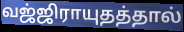
வஜ்ஜிராயுதத்தால்